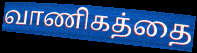
வாணிகத்தை